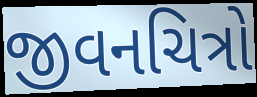
જીવનચિત્રો